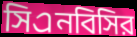
সিএনবিসির